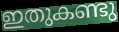
ഇതുകണ്ടു